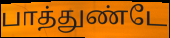
பாத்துண்டே